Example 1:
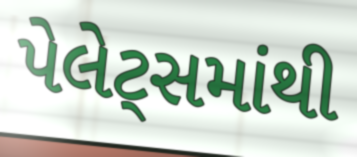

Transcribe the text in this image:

પેલેટ્સમાંથી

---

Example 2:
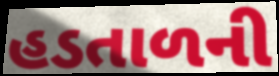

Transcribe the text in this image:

હડતાળની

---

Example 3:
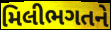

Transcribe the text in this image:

મિલીભગતને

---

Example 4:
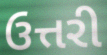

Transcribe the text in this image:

ઉત્તરી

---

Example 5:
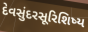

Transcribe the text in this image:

દેવસુંદરસૂરિશિષ્ય